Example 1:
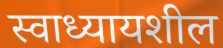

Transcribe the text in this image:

स्वाध्यायशील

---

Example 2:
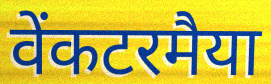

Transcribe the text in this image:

वेंकटरमैया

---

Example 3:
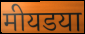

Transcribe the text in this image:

मीयडया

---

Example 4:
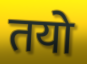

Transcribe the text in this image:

तयो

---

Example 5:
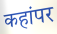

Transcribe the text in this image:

कहांपर